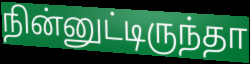
நின்னுட்டிருந்தா